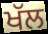
ਖੱਲ